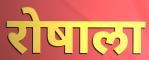
रोषाला